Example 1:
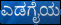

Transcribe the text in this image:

ಎಡಗೈಯ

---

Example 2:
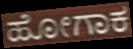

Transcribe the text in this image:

ಹೋಗಾಕ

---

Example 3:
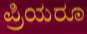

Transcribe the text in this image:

ಪ್ರಿಯರೂ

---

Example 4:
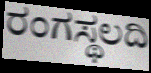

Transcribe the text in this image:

ರಂಗಸ್ಥಲದಿ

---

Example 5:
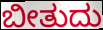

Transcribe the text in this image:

ಬೀತುದು